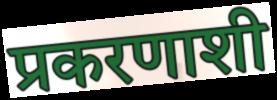
प्रकरणाशी